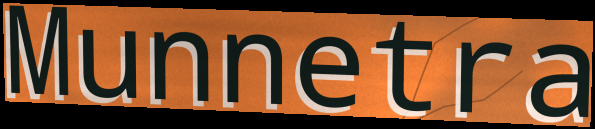
Munnetra